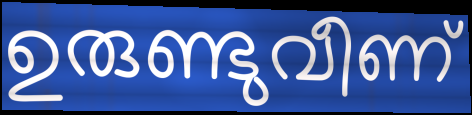
ഉരുണ്ടുവീണ്